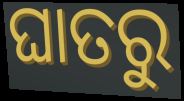
ଘାତରୁ